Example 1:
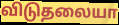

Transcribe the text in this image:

விடுதலையா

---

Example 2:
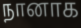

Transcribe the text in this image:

நானாக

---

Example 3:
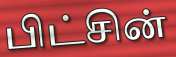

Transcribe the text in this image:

பிட்சின்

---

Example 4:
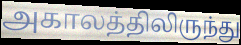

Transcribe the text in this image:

அகாலத்திலிருந்து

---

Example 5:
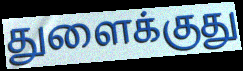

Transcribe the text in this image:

துளைக்குது